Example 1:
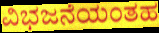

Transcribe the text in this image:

ವಿಭಜನೆಯಂತಹ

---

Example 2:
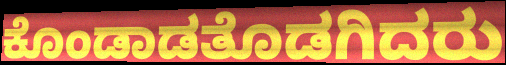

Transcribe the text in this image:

ಕೊಂಡಾಡತೊಡಗಿದರು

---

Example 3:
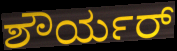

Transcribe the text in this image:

ಶೌರ್ಯರ್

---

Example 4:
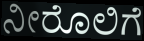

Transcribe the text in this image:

ನೀರೊಲಿಗೆ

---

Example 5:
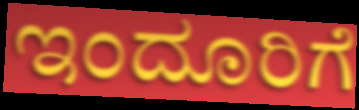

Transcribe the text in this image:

ಇಂದೂರಿಗೆ